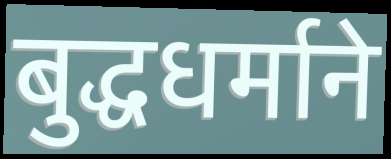
बुद्धधर्माने